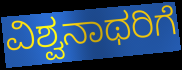
ವಿಶ್ವನಾಥರಿಗೆ